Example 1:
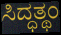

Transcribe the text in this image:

ಸಿದ್ಧತ್ಥಂ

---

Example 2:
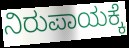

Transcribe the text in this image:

ನಿರುಪಾಯಕ್ಕೆ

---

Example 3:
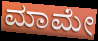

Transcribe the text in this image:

ಮಾಮೇ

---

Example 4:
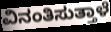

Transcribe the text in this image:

ವಿನಂತಿಸುತ್ತಾಳೆ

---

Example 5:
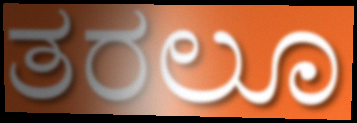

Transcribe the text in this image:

ತರಲೂ